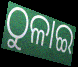
ଠୁଳାଇ